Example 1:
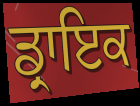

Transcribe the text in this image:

ਡ੍ਰਾਇਕ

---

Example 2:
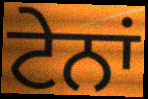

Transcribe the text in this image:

ਟੇਨਾਂ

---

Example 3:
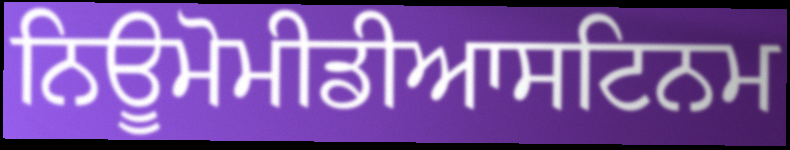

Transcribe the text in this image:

ਨਿਊਮੋਮੀਡੀਆਸਟਿਨਮ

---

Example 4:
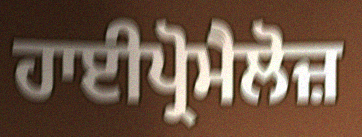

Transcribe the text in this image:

ਹਾਈਪ੍ਰੋਮੈਲੋਜ਼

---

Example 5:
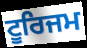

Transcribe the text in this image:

ਟੂਰਿਜਮ